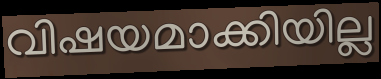
വിഷയമാക്കിയില്ല